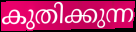
കുതിക്കുന്ന